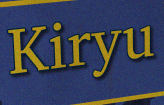
Kiryu